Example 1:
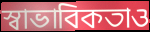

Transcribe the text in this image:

স্বাভাবিকতাও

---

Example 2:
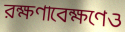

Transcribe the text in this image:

রক্ষণাবেক্ষণেও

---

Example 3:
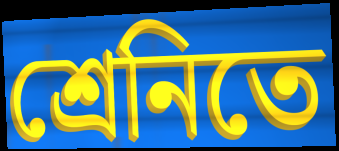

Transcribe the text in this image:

শ্রেনিতে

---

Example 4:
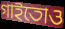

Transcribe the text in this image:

গাইতোও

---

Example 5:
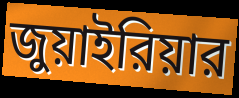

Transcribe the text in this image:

জুয়াইরিয়ার